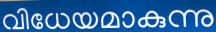
വിധേയമാകുന്നു